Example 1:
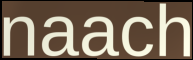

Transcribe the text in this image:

naach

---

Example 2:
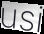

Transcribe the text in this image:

usi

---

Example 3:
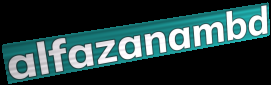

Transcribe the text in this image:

alfazanambd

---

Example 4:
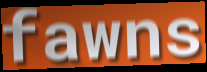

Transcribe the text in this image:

fawns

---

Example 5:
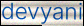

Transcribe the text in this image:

devyani